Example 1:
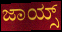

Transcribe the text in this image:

ಜಾಯ್ಸ್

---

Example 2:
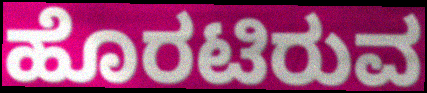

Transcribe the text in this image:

ಹೊರಟಿರುವ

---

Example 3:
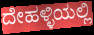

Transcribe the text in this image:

ದೇಹಳ್ಳಿಯಲ್ಲಿ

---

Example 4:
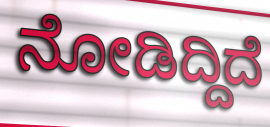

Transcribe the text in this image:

ನೋಡಿದ್ದಿದೆ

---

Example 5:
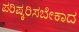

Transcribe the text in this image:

ಪರಿಷ್ಕರಿಸಬೇಕಾದ